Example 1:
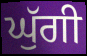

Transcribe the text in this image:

ਘੁੱਗੀ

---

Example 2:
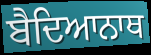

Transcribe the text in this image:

ਬੈਦਿਆਨਾਥ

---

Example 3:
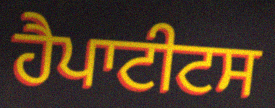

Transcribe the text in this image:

ਹੈਪਾਟੀਟਸ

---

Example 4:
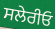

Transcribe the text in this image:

ਸਲੇਰੀਓ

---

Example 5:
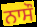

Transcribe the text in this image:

ਨਾਸੌ